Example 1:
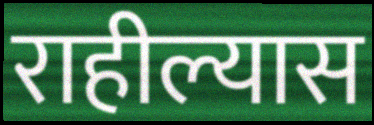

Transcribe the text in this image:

राहील्यास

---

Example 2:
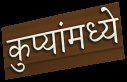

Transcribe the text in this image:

कुप्यांमध्ये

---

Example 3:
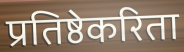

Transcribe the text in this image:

प्रतिष्ठेकरिता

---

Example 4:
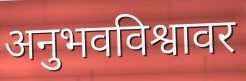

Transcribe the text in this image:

अनुभवविश्वावर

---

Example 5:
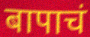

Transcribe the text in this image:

बापाचं